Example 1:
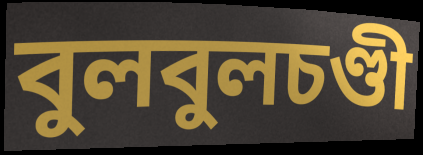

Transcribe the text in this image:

বুলবুলচণ্ডী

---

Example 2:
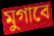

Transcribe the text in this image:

মুগাবে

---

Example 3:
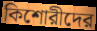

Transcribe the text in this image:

কিশোরীদের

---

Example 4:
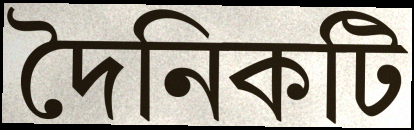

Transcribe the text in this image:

দৈনিকটি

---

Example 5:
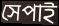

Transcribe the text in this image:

সেপাই